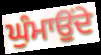
ਘੁੰਮਾਉਂਦੇ